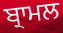
ਬ੍ਰਾਮਲ